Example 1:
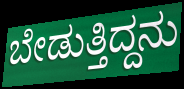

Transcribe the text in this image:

ಬೇಡುತ್ತಿದ್ದನು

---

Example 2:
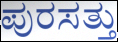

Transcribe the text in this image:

ಪುರಸತ್ತು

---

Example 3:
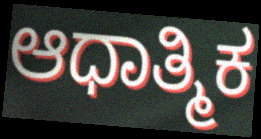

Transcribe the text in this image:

ಆಧಾತ್ಮಿಕ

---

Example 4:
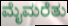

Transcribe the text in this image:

ಮೈಮರೆತು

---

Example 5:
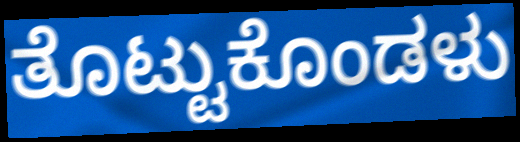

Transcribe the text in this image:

ತೊಟ್ಟುಕೊಂಡಳು